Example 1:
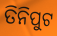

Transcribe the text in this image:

ତିନିପୁଟ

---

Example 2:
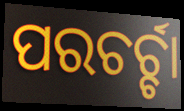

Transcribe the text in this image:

ପରଚର୍ଚ୍ଚା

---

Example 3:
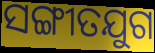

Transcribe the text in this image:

ସଙ୍ଗୀତଯୁଗ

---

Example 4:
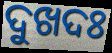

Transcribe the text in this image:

ଦୁଖଦଃ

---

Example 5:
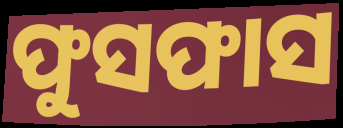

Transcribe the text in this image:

ଫୁସଫାସ